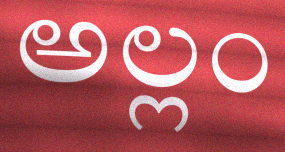
అల్లం